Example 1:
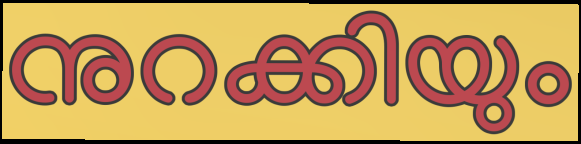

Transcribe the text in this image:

നുറക്കിയും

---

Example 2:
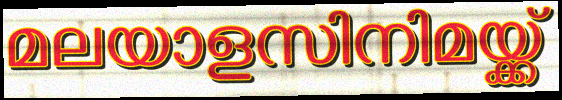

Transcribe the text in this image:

മലയാളസിനിമയ്ക്ക്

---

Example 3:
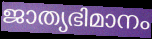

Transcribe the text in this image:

ജാത്യഭിമാനം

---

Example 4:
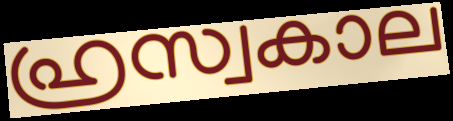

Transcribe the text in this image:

ഹ്രസ്വകാല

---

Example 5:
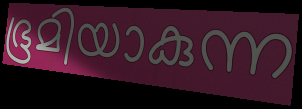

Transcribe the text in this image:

ഭൂമിയാകുന്ന